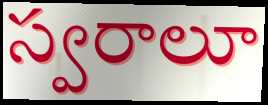
స్వరాలూ